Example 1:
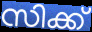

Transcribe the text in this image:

സിക്ക്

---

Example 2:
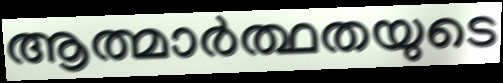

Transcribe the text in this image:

ആത്മാർത്ഥതയുടെ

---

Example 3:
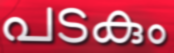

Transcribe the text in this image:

പടകും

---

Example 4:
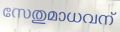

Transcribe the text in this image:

സേതുമാധവന്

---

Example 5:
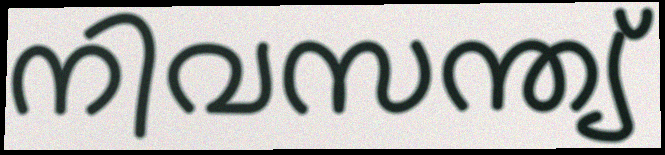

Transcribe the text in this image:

നിവസന്ത്യ്